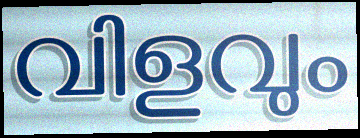
വിളവും